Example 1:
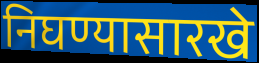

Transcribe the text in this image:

निघण्यासारखे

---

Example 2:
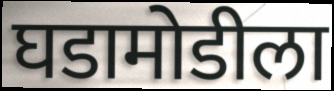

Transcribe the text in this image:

घडामोडीला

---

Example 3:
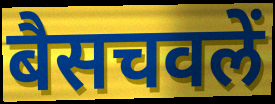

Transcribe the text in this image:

बैसचवलें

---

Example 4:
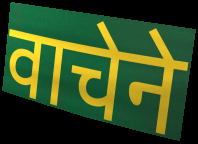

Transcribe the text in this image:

वाचेने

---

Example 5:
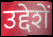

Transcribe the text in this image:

उद्देशें